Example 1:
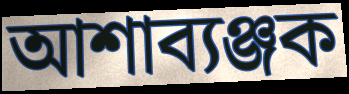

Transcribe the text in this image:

আশাব্যঞ্জক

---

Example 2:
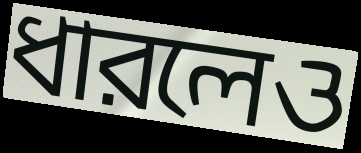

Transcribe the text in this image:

ধারলেও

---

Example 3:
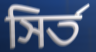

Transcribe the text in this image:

সির্ত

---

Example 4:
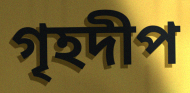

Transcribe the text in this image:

গৃহদীপ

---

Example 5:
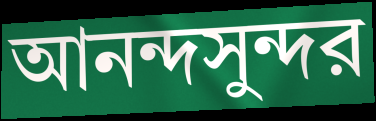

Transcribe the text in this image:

আনন্দসুন্দর